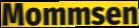
Mommsen